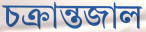
চক্রান্তজাল